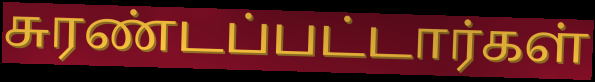
சுரண்டப்பட்டார்கள்